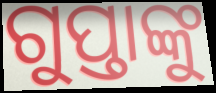
ଗୁପ୍ତାଙ୍କୁ